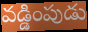
వడ్డింపుడు